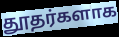
தூதர்களாக